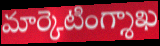
మార్కెటింగ్శాఖ